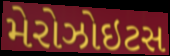
મેરોઝોઇટસ